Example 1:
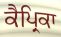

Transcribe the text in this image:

ਕੈਪ੍ਰਿਕਾ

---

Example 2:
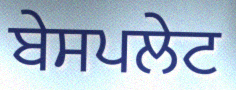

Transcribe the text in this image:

ਬੇਸਪਲੇਟ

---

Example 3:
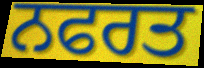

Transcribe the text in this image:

ਨਫਰਤ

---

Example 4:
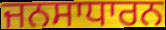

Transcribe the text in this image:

ਜਨਸਾਧਾਰਨ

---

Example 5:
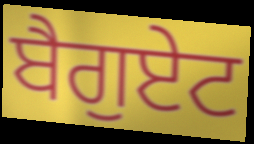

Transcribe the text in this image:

ਬੈਗੁਏਟ